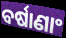
ବର୍ଷାଣାଂ